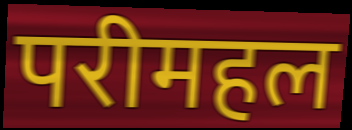
परीमहल